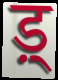
ड़्